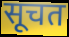
सूचत